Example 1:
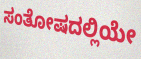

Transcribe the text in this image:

ಸಂತೋಷದಲ್ಲಿಯೇ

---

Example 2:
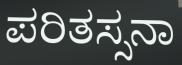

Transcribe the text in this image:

ಪರಿತಸ್ಸನಾ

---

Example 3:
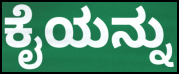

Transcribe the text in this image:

ಕೈಯನ್ನು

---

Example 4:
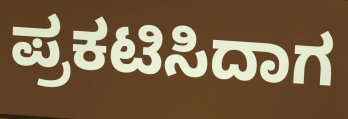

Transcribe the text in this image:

ಪ್ರಕಟಿಸಿದಾಗ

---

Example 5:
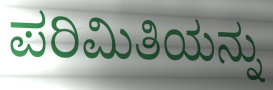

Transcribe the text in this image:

ಪರಿಮಿತಿಯನ್ನು